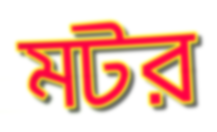
মটর